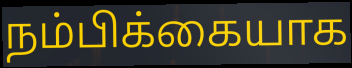
நம்பிக்கையாக